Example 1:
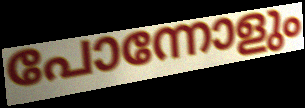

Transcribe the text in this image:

പോന്നോളും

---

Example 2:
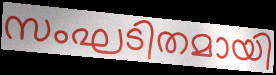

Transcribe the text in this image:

സംഘടിതമായി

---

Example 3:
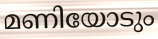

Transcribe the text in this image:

മണിയോടും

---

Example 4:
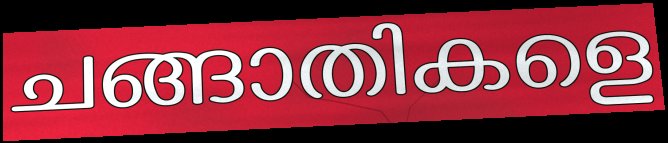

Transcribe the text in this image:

ചങ്ങാതികളെ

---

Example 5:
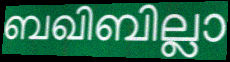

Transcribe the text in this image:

ബഖിബില്ലാ